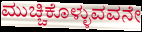
ಮುಚ್ಚಿಕೊಳ್ಳುವವನೇ